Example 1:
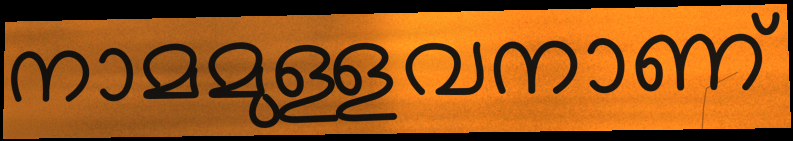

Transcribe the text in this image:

നാമമുള്ളവനാണ്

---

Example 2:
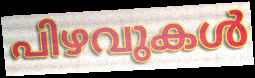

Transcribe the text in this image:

പിഴവുകൾ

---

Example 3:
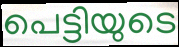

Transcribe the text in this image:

പെട്ടിയുടെ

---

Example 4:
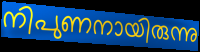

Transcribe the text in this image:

നിപുണനായിരുന്നു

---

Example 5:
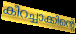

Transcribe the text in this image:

കീറച്ചാക്കിന്റെ